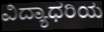
ವಿದ್ಯಾಧರಿಯ